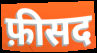
फ़ीसद